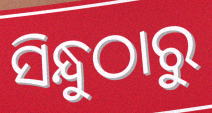
ସିନ୍ଧୁଠାରୁ